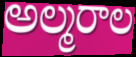
అల్మరాల